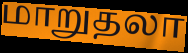
மாறுதலா